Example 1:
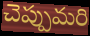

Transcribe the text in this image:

చెప్పుమరి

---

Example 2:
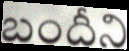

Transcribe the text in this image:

బందీని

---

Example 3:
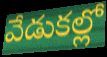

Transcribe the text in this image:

వేడుకల్లో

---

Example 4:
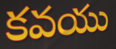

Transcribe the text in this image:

కవయు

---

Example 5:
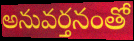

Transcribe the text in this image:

అనువర్తనంతో